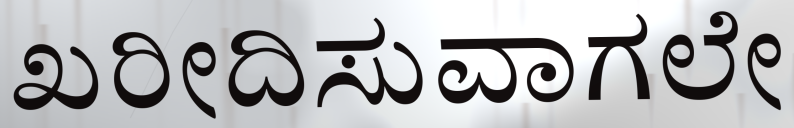
ಖರೀದಿಸುವಾಗಲೇ